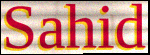
Sahid